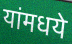
यांमधये